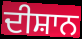
ਦੀਸ਼ਾਨ